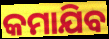
କମାଯିବ